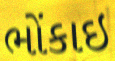
ભોંકાઇ